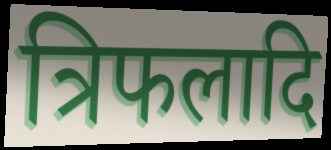
त्रिफलादि